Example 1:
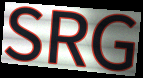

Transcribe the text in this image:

SRG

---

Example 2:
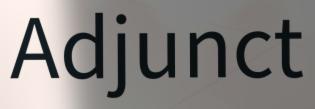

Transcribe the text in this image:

Adjunct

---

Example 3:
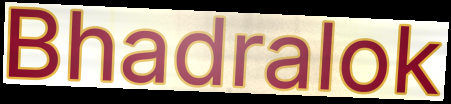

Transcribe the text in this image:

Bhadralok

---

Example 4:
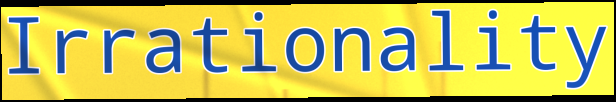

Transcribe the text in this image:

Irrationality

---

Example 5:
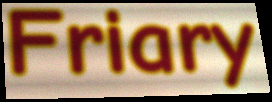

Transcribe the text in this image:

Friary